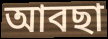
আবছা